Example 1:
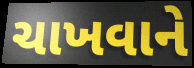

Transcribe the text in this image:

ચાખવાને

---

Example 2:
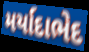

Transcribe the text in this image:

મર્યાદાભેદ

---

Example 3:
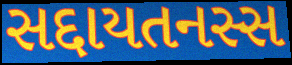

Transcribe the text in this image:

સદ્દાયતનસ્સ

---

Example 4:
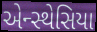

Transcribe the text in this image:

એન્સ્થેસિયા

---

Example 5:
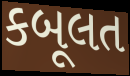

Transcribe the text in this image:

કબૂલત